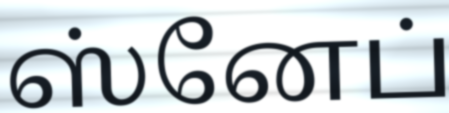
ஸ்னேப்